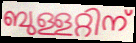
ബുള്ളറ്റിന്